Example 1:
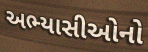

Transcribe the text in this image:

અભ્યાસીઓનો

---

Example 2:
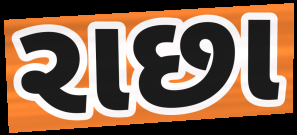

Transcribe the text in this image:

રાછા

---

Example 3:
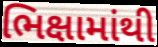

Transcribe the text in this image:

ભિક્ષામાંથી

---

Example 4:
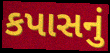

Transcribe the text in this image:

કપાસનું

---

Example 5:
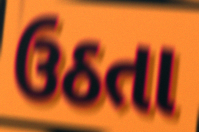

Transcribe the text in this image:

ઉઠતા